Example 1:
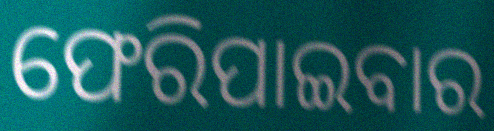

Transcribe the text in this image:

ଫେରିପାଇବାର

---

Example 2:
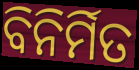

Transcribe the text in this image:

ବିନିର୍ମିତ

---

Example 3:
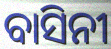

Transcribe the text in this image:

ବାସିନୀ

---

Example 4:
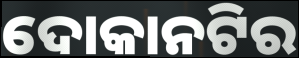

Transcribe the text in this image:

ଦୋକାନଟିର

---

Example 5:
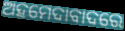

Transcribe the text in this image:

ଅହମେଦାବାଦରେ